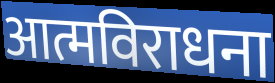
आत्मविराधना